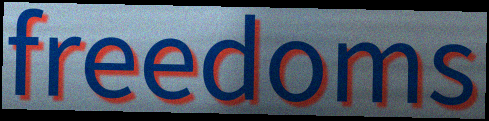
freedoms